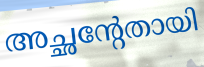
അച്ഛന്റേതായി